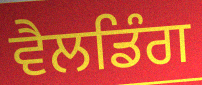
ਵੈਲਡਿੰਗ